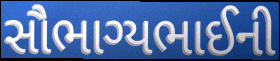
સૌભાગ્યભાઈની